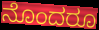
ನೊಂದರೂ